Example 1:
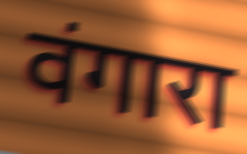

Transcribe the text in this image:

वंगारा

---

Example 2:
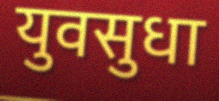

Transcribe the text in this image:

युवसुधा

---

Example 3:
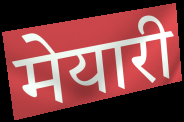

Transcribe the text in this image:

मेयारी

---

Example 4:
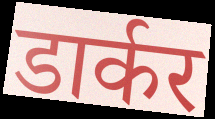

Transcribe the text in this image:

डार्कर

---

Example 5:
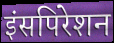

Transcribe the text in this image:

इंसपिरेशन